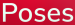
Poses